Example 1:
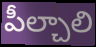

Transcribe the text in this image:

పీల్చాలి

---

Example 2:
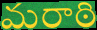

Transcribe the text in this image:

మరాఠి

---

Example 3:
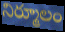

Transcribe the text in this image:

నిర్మూలం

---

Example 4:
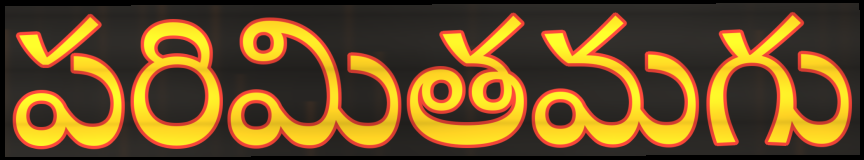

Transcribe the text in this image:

పరిమితమగు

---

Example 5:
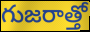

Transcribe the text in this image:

గుజరాత్తో